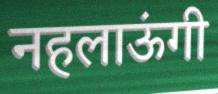
नहलाऊंगी